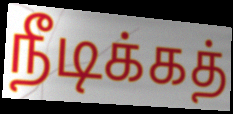
நீடிக்கத்